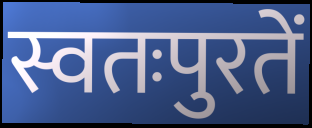
स्वतःपुरतें